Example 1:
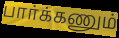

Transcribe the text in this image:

பார்க்கணும்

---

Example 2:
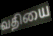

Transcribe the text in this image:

வதியை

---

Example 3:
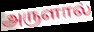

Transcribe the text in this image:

அருளால்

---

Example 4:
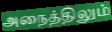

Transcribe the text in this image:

அநைத்திலும்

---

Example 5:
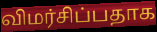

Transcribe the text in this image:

விமர்சிப்பதாக